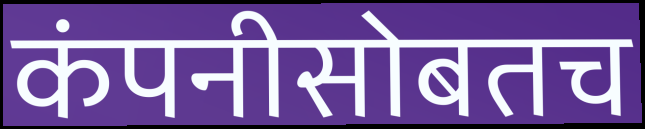
कंपनीसोबतच